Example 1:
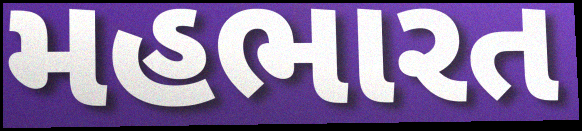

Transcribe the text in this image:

મહભારત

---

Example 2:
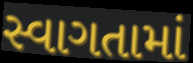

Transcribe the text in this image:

સ્વાગતામાં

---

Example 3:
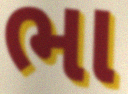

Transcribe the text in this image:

ભા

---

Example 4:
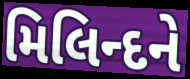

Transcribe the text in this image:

મિલિન્દને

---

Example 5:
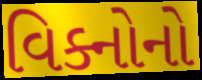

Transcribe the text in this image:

વિક્નોનો